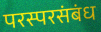
परस्परसंबंध